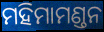
ମହିମାମଣ୍ଡନ